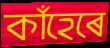
কাঁহেৰে